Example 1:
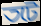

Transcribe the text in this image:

তটে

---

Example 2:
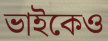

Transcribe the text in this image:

ভাইকেও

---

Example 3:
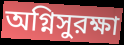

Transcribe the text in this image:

অগ্নিসুরক্ষা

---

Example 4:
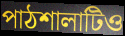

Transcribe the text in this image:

পাঠশালাটিও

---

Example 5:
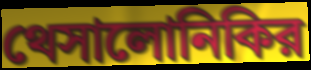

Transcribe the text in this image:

থেসালোনিকির